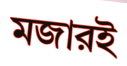
মজারই